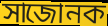
সাজোনক